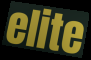
elite